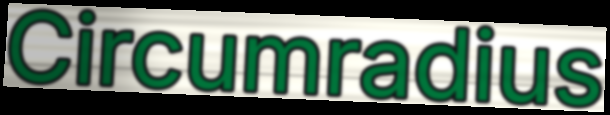
Circumradius